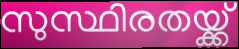
സുസ്ഥിരതയ്ക്ക്